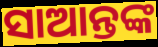
ସାଆନ୍ତଙ୍କ